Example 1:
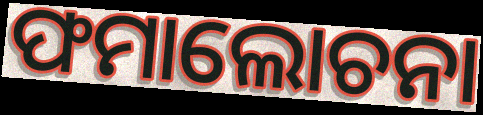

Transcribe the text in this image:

ଫମାଲୋଚନା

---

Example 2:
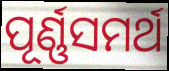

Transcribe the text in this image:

ପୂର୍ଣ୍ଣସମର୍ଥ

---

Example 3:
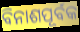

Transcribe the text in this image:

ବିନାଶପୂର୍ବକ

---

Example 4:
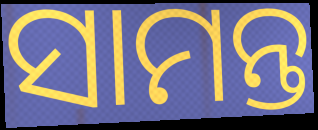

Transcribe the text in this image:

ସାମନ୍ତ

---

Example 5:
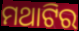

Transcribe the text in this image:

ମଥାଟିର